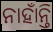
ନାହାଁନ୍ତି